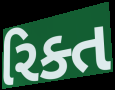
રિક્ત